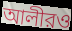
আলীরও